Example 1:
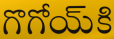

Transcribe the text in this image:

గొగోయ్‌కి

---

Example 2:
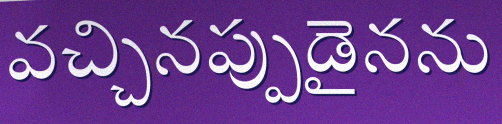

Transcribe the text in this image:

వచ్చినప్పుడైనను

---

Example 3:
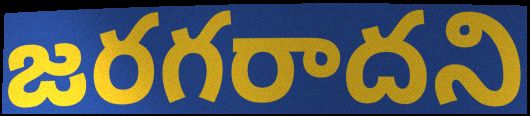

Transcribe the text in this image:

జరగరాదని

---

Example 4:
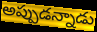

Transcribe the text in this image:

అప్పుడన్నాడు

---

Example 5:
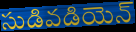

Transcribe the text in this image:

సుడివడియెన్